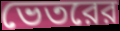
ভেতরের